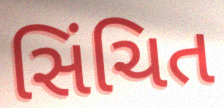
સિંચિત